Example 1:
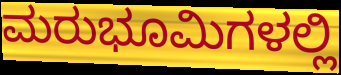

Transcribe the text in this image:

ಮರುಭೂಮಿಗಳಲ್ಲಿ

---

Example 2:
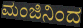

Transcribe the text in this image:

ಮಂಜಿನಿಂದ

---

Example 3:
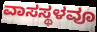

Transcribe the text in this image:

ವಾಸಸ್ಥಳವೂ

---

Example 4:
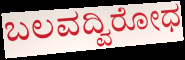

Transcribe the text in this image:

ಬಲವದ್ವಿರೋಧ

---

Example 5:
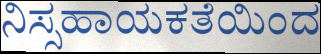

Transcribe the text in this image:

ನಿಸ್ಸಹಾಯಕತೆಯಿಂದ